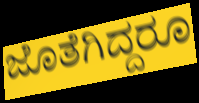
ಜೊತೆಗಿದ್ದರೂ